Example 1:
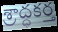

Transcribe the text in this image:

శ్రాద్ధకర్త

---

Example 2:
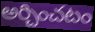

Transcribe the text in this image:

అర్చించటం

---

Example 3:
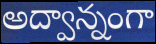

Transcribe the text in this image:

అద్వాన్నంగా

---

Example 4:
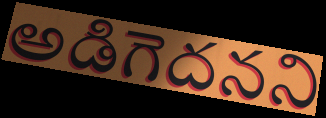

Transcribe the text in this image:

అడిగెదనని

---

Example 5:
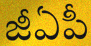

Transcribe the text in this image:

జీఏపీ